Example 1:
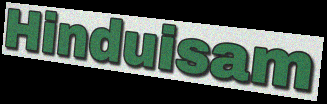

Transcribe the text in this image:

Hinduisam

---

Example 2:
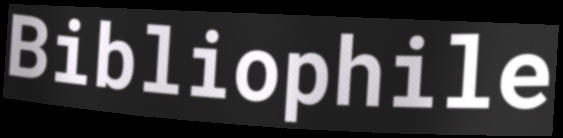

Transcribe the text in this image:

Bibliophile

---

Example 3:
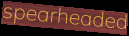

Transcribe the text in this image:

spearheaded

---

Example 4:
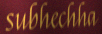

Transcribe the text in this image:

subhechha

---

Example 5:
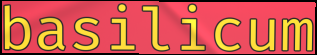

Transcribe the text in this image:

basilicum